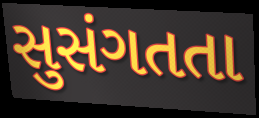
સુસંગતતા